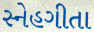
સ્નેહગીતા